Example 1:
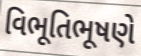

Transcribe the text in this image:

વિભૂતિભૂષણે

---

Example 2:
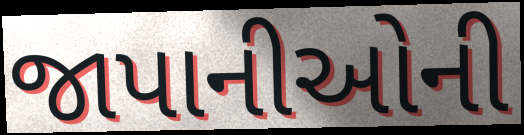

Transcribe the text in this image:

જાપાનીઓની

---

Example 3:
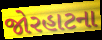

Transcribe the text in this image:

જોરહાટના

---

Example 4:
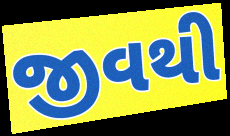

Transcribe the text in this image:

જીવથી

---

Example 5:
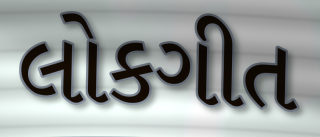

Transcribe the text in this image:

લોકગીત